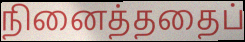
நினைத்ததைப்